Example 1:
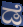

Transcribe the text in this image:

ಡೆ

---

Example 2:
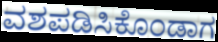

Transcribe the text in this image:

ವಶಪಡಿಸಿಕೊಂಡಾಗ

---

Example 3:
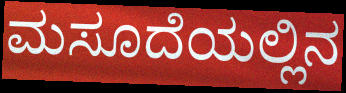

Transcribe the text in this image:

ಮಸೂದೆಯಲ್ಲಿನ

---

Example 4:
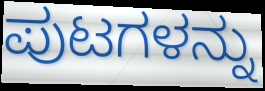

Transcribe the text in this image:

ಪುಟಗಳನ್ನು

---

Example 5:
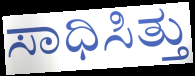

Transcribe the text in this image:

ಸಾಧಿಸಿತ್ತು